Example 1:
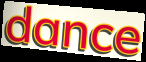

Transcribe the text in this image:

dance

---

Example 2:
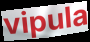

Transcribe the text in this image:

vipula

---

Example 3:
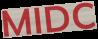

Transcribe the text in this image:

MIDC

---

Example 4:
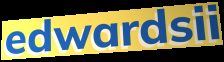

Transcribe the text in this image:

edwardsii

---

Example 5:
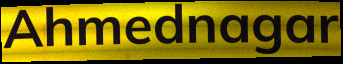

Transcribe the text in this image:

Ahmednagar